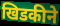
खिडकीने